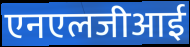
एनएलजीआई